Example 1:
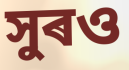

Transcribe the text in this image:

সুৰও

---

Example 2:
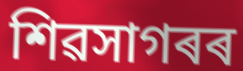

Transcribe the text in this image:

শিৱসাগৰৰ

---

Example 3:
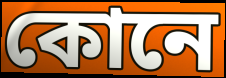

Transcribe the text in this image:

কোনে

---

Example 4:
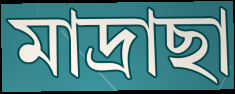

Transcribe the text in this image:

মাদ্ৰাছা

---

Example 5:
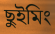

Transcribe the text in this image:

ছুইমিং